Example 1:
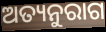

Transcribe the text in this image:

ଅତ୍ୟନୁରାଗ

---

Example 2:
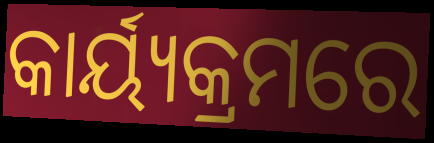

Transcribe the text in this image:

କାର୍ୟ୍ୟକ୍ରମରେ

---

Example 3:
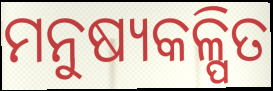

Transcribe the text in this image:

ମନୁଷ୍ୟକଳ୍ପିତ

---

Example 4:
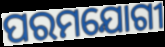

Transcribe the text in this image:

ପରମଯୋଗୀ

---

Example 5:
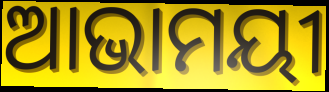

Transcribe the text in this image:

ଆଭାମୟୀ